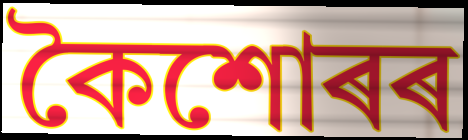
কৈশোৰৰ